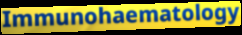
Immunohaematology